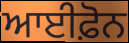
ਆਈਫ਼ੋਨ